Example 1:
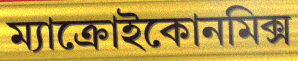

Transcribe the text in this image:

ম্যাক্রোইকোনমিক্স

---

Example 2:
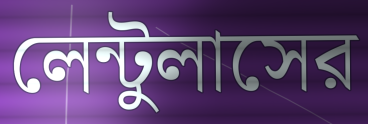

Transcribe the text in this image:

লেন্টুলাসের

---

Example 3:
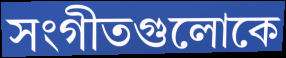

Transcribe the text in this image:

সংগীতগুলোকে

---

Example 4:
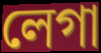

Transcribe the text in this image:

লেগা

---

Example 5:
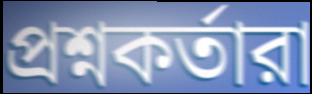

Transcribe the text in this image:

প্রশ্নকর্তারা